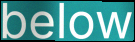
below